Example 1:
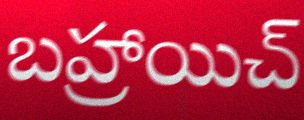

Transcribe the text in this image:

బహ్రాయిచ్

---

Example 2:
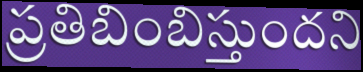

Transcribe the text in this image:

ప్రతిబింబిస్తుందని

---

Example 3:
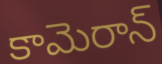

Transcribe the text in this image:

కామెరాన్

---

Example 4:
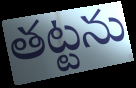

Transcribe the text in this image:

తట్టను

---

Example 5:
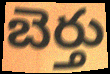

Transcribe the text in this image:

బెర్తు